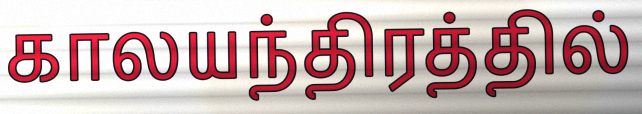
காலயந்திரத்தில்